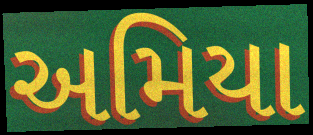
અમિયા